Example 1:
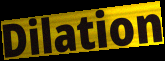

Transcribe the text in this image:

Dilation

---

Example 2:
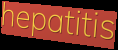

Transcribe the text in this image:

hepatitis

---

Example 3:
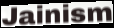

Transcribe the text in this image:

Jainism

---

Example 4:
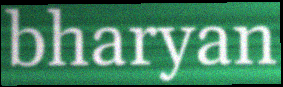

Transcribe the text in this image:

bharyan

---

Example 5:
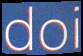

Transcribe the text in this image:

doi